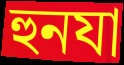
হুনযা